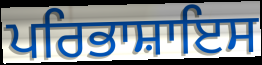
ਪਰਿਭਾਸ਼ਾਇਸ